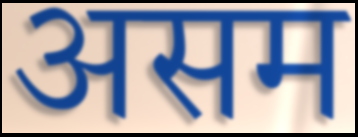
असम